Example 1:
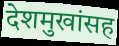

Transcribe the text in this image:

देशमुखांसह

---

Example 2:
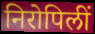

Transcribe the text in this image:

निरोपिलीं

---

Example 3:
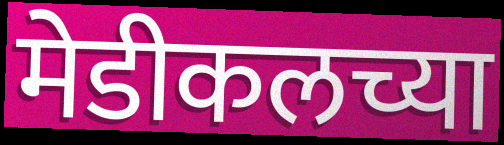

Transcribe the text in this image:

मेडीकलच्या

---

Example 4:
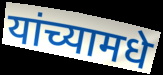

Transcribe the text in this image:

यांच्यामधे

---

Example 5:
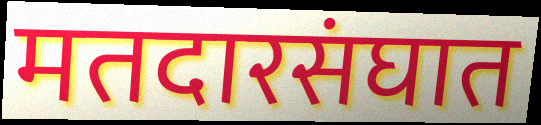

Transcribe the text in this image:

मतदारसंघात